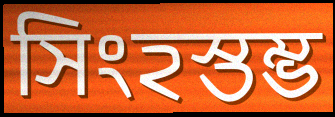
সিংহস্তম্ভ